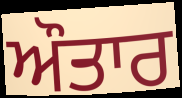
ਔਤਾਰ